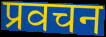
प्रवचन